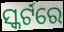
ସ୍କର୍ଟରେ